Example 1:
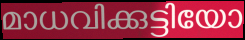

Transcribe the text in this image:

മാധവിക്കുട്ടിയോ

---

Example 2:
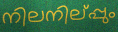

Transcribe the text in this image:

നിലനില്പ്പും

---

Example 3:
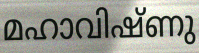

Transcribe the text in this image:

മഹാവിഷ്ണു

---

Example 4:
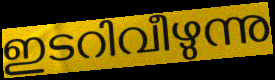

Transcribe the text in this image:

ഇടറിവീഴുന്നു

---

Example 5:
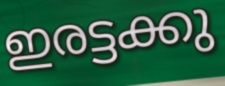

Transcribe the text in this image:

ഇരട്ടക്കു